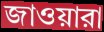
জাওয়ারা